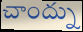
చాంద్ను